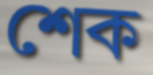
শেক